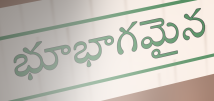
భూభాగమైన